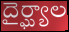
దైర్ఘ్యాల